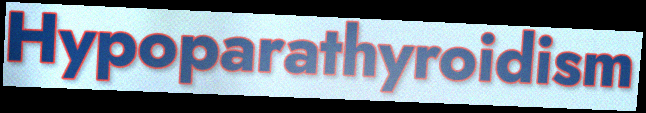
Hypoparathyroidism